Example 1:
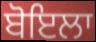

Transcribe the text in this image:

ਬੋਇਲਾ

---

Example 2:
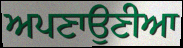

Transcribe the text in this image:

ਅਪਣਾਉਣੀਆ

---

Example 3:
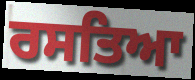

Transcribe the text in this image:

ਰਸਤਿਆ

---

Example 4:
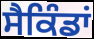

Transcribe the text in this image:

ਸੈਕਿੰਡਾਂ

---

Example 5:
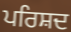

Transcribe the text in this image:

ਪਰਿਸ਼ਦ